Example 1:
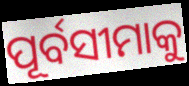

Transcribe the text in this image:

ପୂର୍ବସୀମାକୁ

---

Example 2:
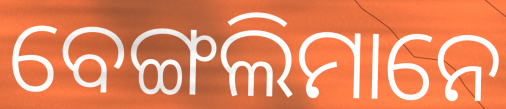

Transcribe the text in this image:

ବେଙ୍ଗଲିମାନେ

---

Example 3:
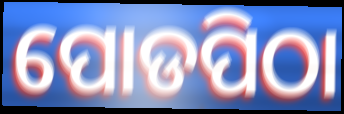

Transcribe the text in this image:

ପୋଡପିଠା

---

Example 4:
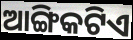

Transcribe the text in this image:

ଆଙ୍ଗିକଟିଏ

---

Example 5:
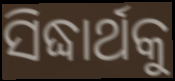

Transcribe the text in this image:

ସିଦ୍ଧାର୍ଥକୁ